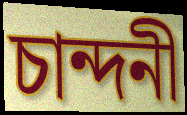
চান্দনী